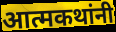
आत्मकथांनी